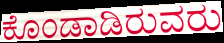
ಕೊಂಡಾಡಿರುವರು